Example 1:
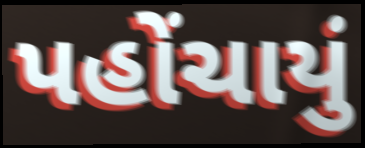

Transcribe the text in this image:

પહોંચાયું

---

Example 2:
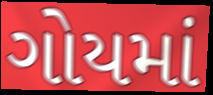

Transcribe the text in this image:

ગોયમાં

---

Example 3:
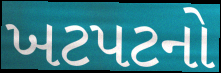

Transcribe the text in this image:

ખટપટનો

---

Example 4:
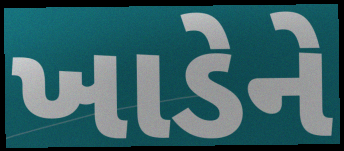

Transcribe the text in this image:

ખાડેને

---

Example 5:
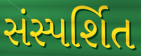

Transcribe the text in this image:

સંસ્પર્શિત